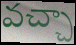
వచ్చా